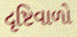
દૃષ્ટિવાળો